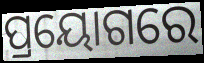
ପ୍ରୟୋଗରେ